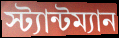
স্ট্যান্টম্যান